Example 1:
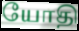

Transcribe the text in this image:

யோதி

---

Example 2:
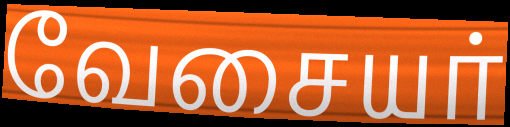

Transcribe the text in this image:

வேசையர்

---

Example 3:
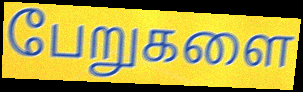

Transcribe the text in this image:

பேறுகளை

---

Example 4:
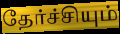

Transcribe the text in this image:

தேர்ச்சியும்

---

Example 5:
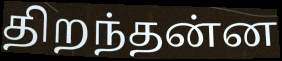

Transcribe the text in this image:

திறந்தன்ன